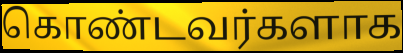
கொண்டவர்களாக